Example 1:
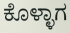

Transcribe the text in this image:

ಕೊಳ್ಳಾಗ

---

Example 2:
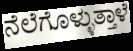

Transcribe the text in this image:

ನೆಲೆಗೊಳ್ಳುತ್ತಾಳೆ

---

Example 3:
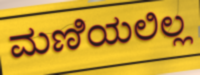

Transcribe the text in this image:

ಮಣಿಯಲಿಲ್ಲ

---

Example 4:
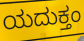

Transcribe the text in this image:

ಯದುಕ್ತಂ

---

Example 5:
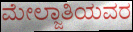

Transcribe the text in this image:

ಮೇಲ್ಜಾತಿಯವರ